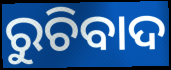
ରୁଚିବାଦ